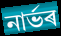
নাৰ্ভৰ